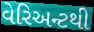
વેરિઅન્ટથી